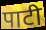
पाटी